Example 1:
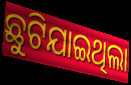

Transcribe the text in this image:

ଛୁଟିଯାଇଥିଲା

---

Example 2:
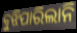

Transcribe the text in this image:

ବୁଝିପାରିଲାନି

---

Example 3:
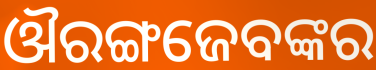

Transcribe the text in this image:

ଔରଙ୍ଗଜେବଙ୍କର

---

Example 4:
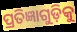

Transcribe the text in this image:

ପ୍ରତିଜ୍ଞାଗୁଡ଼ିକୁ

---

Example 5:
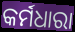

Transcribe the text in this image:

କର୍ମଧାରା